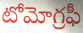
టోమోగ్రఫీ